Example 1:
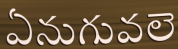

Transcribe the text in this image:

ఏనుగువలె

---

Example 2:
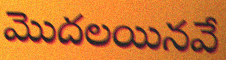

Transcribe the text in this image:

మొదలయినవే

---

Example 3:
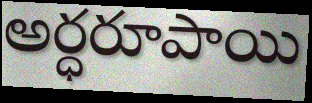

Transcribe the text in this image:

అర్ధరూపాయి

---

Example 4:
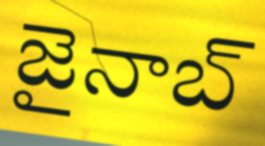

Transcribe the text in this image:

జైనాబ్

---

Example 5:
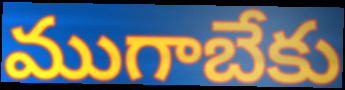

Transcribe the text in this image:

ముగాబేకు